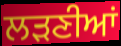
ਲੜਣੀਆਂ